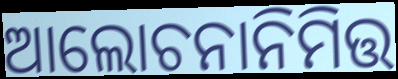
ଆଲୋଚନାନିମିତ୍ତ